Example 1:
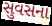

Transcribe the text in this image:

સુવસના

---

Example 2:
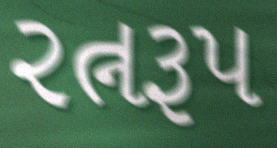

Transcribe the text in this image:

રત્નરૂપ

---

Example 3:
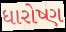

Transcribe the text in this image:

ધારોષ્ણ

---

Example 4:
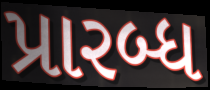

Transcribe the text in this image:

પ્રારબ્ધ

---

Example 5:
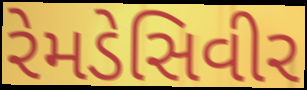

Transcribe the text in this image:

રેમડેસિવીર